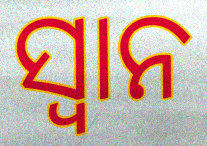
ସ୍ୱାନ